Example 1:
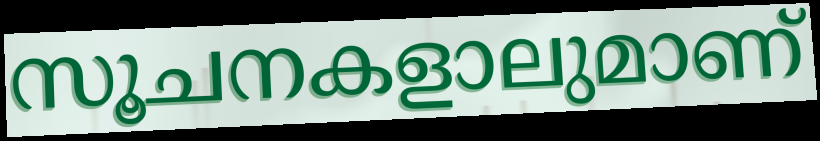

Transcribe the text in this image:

സൂചനകളാലുമാണ്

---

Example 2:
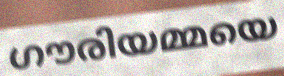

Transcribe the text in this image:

ഗൗരിയമ്മയെ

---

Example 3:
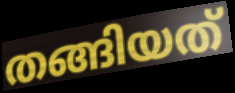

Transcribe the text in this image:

തങ്ങിയത്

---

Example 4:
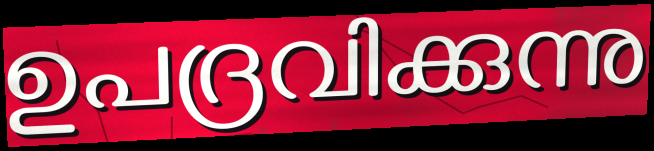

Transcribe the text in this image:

ഉപദ്രവിക്കുന്നു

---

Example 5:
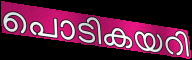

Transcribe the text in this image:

പൊടികയറി